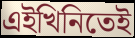
এইখিনিতেই